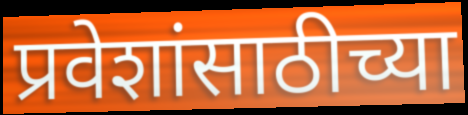
प्रवेशांसाठीच्या